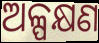
ଅଳ୍ପକ୍ଷଣ